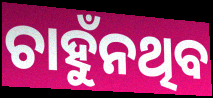
ଚାହୁଁନଥିବ